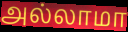
அல்லாமா